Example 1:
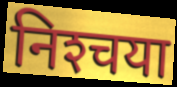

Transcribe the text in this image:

निश्चया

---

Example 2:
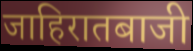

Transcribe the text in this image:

जाहिरातबाजी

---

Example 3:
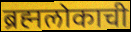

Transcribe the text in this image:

ब्रह्मलोकाची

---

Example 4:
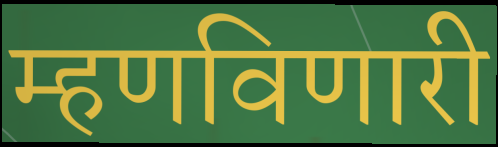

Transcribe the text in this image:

म्हणविणारी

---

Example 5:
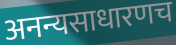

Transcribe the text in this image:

अनन्यसाधारणच